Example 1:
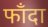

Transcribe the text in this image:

फाँदा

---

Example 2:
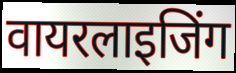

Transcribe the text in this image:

वायरलाइजिंग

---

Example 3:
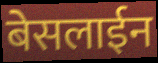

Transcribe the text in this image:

बेसलाईन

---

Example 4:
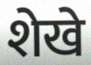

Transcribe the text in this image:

शेखे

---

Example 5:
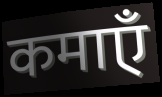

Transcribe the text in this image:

कमाएँ